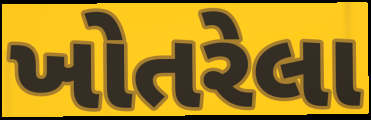
ખોતરેલા